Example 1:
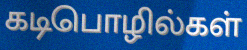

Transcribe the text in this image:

கடிபொழில்கள்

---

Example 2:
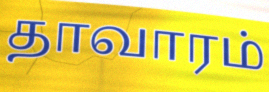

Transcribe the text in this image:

தாவாரம்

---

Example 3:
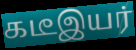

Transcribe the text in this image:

கடீஇயர்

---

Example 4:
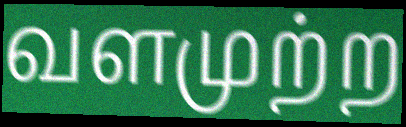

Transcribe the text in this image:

வளமுற்ற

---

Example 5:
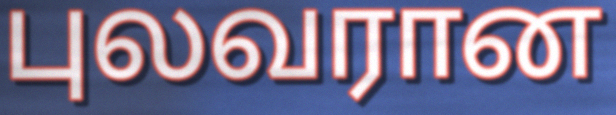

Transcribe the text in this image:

புலவரான